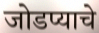
जोडप्याचे